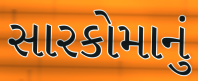
સારકોમાનું